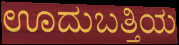
ಊದುಬತ್ತಿಯ